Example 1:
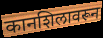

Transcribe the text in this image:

कानशिलावरून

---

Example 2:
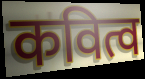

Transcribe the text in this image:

कवित्व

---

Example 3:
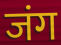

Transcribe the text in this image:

जंग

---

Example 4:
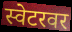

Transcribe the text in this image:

स्वेटरवर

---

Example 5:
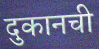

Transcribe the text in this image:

दुकानची